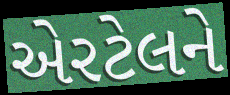
એરટેલને